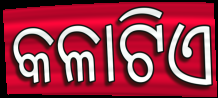
କଳାଟିଏ